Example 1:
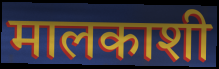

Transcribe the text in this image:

मालकाशी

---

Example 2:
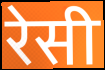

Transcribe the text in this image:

रेसी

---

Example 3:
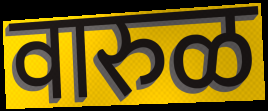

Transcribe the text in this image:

वारुळ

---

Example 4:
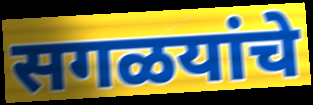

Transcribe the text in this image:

सगळयांचे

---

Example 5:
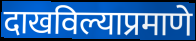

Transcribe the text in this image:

दाखविल्याप्रमाणे